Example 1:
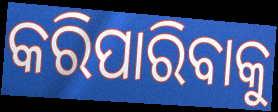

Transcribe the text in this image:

କରିପାରିବାକୁ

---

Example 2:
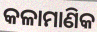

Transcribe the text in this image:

କଳାମାଣିକ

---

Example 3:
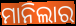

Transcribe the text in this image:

ମାନିଲାର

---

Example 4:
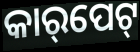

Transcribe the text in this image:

କାର୍‌ପେଟ୍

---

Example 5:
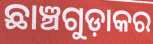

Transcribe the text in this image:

ଛାଞ୍ଚଗୁଡ଼ାକର